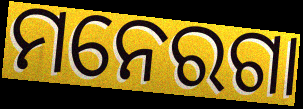
ମନେରଗା